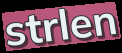
strlen